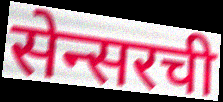
सेन्सरची